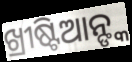
ଖ୍ରୀଷ୍ଟିଆନ୍ଙ୍କ